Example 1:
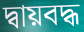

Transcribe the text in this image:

দ্বায়বদ্ধ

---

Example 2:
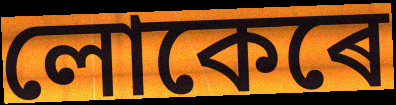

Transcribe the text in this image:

লোকেৰে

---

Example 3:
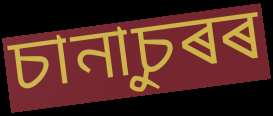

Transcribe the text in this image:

চানাচুৰৰ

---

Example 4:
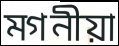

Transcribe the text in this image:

মগনীয়া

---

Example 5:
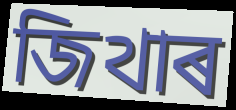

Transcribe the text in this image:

জিথাৰ